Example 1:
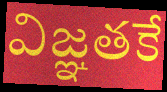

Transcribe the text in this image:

విజ్ఞతకే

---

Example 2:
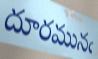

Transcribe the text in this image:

దూరమునఁ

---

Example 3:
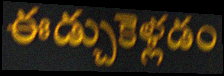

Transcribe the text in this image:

ఈడ్చుకెళ్లడం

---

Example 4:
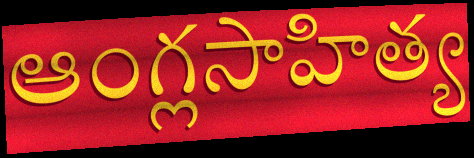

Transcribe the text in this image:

ఆంగ్లసాహిత్య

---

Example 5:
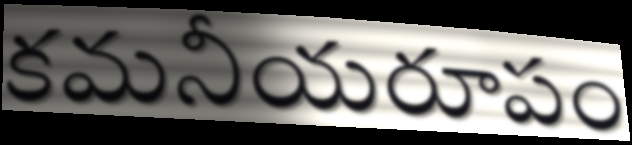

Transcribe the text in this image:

కమనీయరూపం